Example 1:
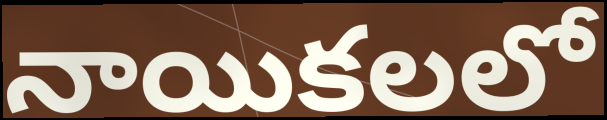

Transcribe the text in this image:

నాయికలలో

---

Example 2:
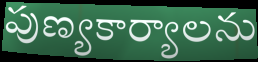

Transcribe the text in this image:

పుణ్యకార్యాలను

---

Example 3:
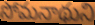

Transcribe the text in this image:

సోమనాథుని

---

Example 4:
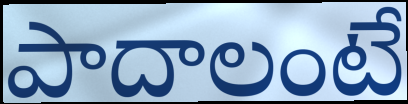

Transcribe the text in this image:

పాదాలంటే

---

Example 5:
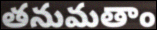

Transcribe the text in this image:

తనుమతాం